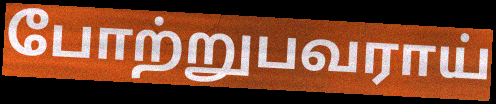
போற்றுபவராய்